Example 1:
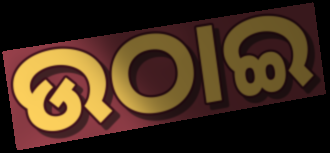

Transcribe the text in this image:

ଉଠାଇ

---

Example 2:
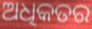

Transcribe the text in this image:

ଅଧିକତର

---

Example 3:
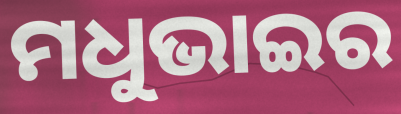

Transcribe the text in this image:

ମଧୁଭାଇର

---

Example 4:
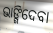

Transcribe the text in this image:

ଭାଙ୍ଗିଦେବା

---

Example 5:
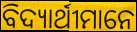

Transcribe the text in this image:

ବିଦ୍ୟାର୍ଥୀମାନେ